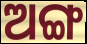
ଅଙ୍ଗ